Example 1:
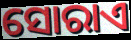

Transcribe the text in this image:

ସୋରାଏ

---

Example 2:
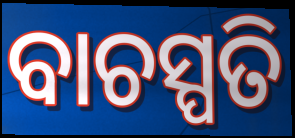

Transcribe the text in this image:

ବାଚସ୍ପତି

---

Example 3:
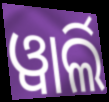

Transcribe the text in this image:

ୱାର୍ଲି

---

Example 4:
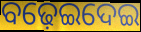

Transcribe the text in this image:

ବଢ଼େଇଦେଇ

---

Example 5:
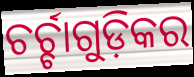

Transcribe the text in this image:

ଚର୍ଚ୍ଚାଗୁଡ଼ିକର